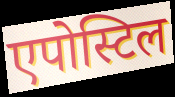
एपोस्टिल